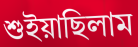
শুইয়াছিলাম